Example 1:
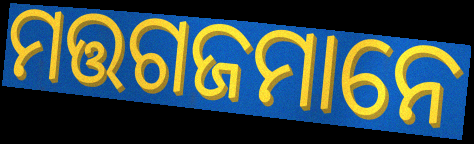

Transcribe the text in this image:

ମତ୍ତଗଜମାନେ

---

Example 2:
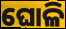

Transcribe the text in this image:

ଘୋଳି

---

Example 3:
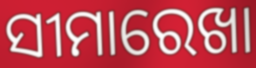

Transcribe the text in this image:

ସୀମାରେଖା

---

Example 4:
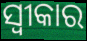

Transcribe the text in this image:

ସ୍ୱୀକାର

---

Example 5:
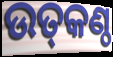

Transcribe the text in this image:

ଉତ୍‌କଣ୍ଠ